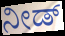
ನೀಡ್